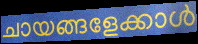
ചായങ്ങളേക്കാൾ